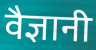
वैज्ञानी